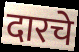
दारचे